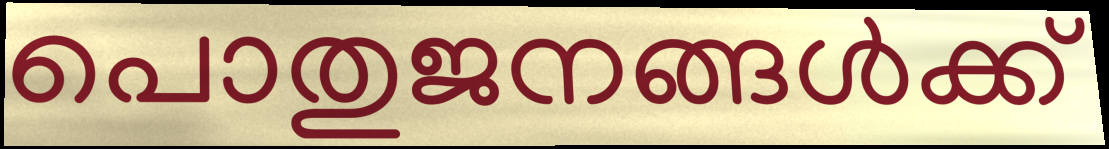
പൊതുജനങ്ങൾക്ക്